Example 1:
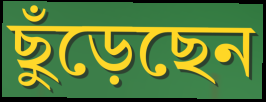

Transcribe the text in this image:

ছুঁড়েছেন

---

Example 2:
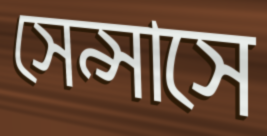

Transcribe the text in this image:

সেন্সাসে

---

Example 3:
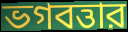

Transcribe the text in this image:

ভগবত্তার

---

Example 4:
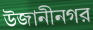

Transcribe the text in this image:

উজানীনগর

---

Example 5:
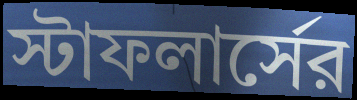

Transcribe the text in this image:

স্টাফলার্সের